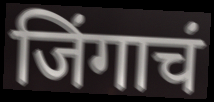
जिंगाचं